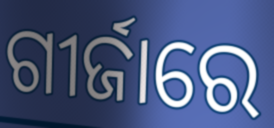
ଗୀର୍ଜାରେ